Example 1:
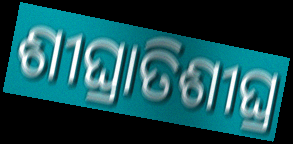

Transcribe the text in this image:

ଶୀଘ୍ରାତିଶୀଘ୍ର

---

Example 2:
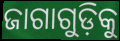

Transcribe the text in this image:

ଜାଗାଗୁଡ଼ିକୁ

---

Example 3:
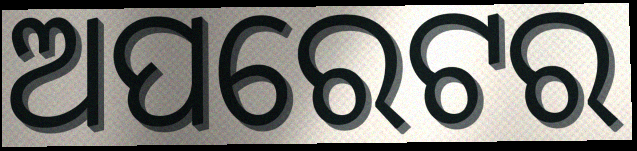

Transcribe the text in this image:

ଅପରେଟର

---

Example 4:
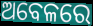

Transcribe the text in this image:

ଅବେଳରେ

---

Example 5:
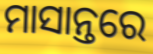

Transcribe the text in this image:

ମାସାନ୍ତରେ